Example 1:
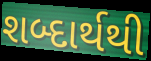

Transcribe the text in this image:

શબ્દાર્થથી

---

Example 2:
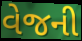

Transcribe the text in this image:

વેજની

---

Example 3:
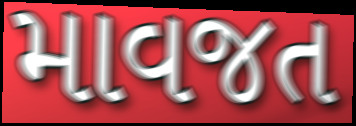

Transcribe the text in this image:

માવજત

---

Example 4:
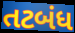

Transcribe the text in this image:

તટબંધ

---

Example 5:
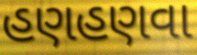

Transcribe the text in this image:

હણહણવા